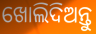
ଖୋଲିଦିଅନ୍ତୁ